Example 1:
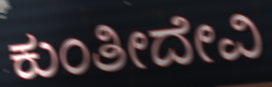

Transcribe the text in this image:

ಕುಂತೀದೇವಿ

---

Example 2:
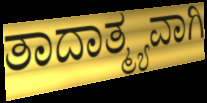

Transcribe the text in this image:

ತಾದಾತ್ಮ್ಯವಾಗಿ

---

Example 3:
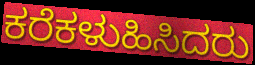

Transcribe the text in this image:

ಕರೆಕಳುಹಿಸಿದರು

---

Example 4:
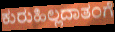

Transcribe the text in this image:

ಕುರುಹಿಲ್ಲದಾತಂಗೆ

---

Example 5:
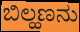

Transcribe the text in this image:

ಬಿಲ್ಹಣನು